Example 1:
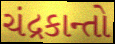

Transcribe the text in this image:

ચંદ્રકાન્તો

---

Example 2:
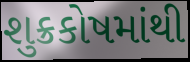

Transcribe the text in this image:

શુક્રકોષમાંથી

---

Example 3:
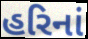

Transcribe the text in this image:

હરિનાં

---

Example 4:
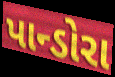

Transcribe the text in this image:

પાન્ડોરા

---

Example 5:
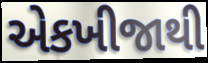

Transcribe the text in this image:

એકખીજાથી